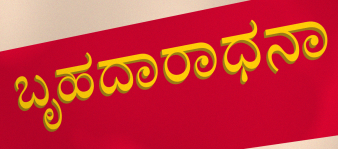
ಬೃಹದಾರಾಧನಾ